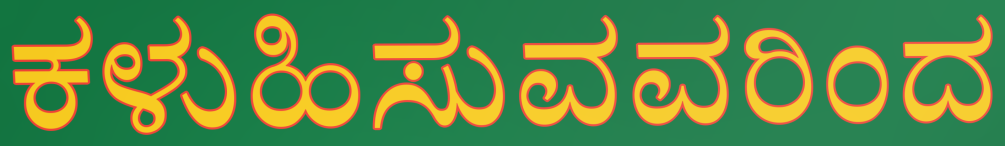
ಕಳುಹಿಸುವವರಿಂದ